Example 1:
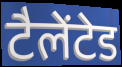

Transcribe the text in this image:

टैलेंटेड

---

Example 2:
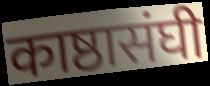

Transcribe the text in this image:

काष्ठासंघी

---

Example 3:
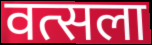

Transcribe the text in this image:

वत्‍सला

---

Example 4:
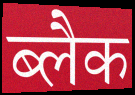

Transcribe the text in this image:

ब्लैक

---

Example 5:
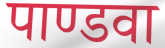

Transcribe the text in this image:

पाण्डवा